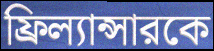
ফ্রিল্যান্সারকে